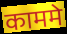
काममे